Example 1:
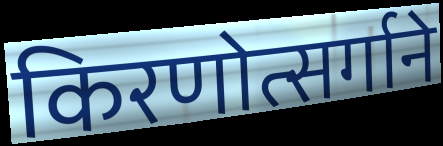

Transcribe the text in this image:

किरणोत्सर्गाने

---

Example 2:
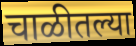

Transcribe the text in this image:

चाळीतल्या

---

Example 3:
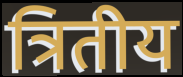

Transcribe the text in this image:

त्रितीय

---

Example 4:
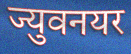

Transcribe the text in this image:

ज्युवनयर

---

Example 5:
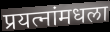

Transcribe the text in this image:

प्रयत्नांमधला